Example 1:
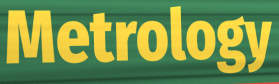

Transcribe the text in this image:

Metrology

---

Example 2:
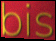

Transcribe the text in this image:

bis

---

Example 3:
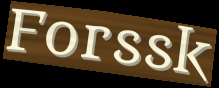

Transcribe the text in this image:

Forssk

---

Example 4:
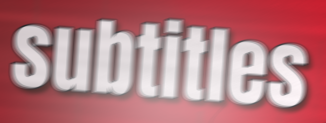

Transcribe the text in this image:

subtitles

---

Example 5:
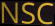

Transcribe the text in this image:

NSC